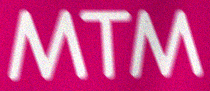
MTM